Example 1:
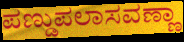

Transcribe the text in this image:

ಪಣ್ಡುಪಲಾಸವಣ್ಣಾ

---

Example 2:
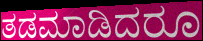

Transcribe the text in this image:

ತಡಮಾಡಿದರೂ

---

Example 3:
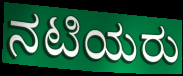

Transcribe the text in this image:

ನಟಿಯರು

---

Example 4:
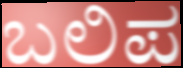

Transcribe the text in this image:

ಬಲಿಪ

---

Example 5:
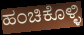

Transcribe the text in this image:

ಹಂಚಿಕೊಳ್ಳಿ